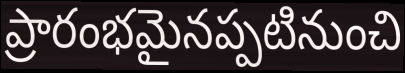
ప్రారంభమైనప్పటినుంచి